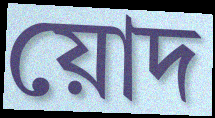
য়োদ